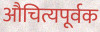
औचित्यपूर्वक